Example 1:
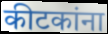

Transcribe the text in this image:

कीटकांना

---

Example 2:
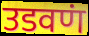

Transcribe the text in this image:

उडवणं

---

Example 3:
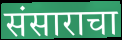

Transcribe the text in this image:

संसाराचा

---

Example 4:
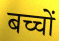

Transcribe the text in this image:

बच्चों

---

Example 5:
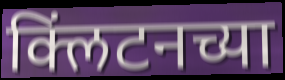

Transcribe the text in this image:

क्लिंटनच्या